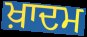
ਖ਼ਾਦਮ